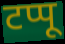
टप्पू